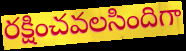
రక్షించవలసిందిగా